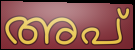
അപ്